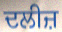
ਦਲੀਜ਼